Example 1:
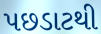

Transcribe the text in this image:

પછડાટથી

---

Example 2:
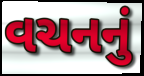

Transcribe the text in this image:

વચનનું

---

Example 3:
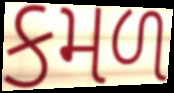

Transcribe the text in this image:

કમળ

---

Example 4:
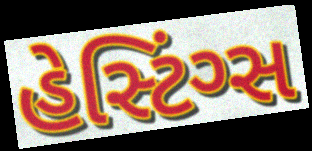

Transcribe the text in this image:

હેસ્ટિંગ્સ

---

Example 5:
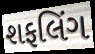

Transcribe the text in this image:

શફલિંગ